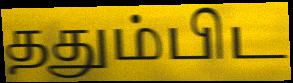
ததும்பிட